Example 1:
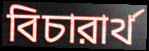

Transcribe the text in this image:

বিচারার্থ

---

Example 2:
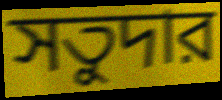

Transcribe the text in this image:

সতুদার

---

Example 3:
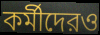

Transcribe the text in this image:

কর্মীদেরও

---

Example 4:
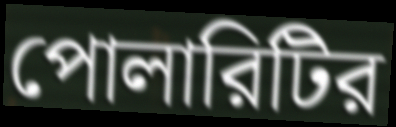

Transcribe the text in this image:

পোলারিটির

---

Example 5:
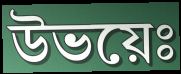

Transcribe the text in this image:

উভয়েঃ